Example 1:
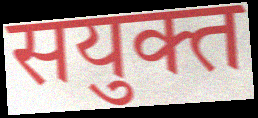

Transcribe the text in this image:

सयुक्त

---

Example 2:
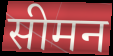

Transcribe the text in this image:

सीमन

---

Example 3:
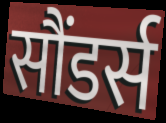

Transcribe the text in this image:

सौंडर्स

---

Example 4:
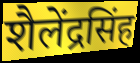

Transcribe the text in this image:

शैलेंद्रसिंह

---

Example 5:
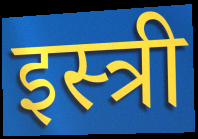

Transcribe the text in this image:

इस्त्री